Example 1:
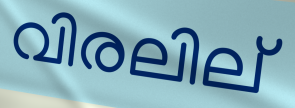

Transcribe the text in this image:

വിരലില്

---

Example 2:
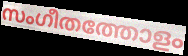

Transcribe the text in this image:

സംഗീതത്തോളം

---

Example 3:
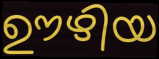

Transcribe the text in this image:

ഊഴിയ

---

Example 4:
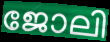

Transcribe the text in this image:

ജോലി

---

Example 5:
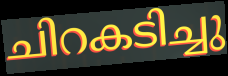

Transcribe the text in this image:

ചിറകടിച്ചു